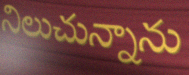
నిలుచున్నాను